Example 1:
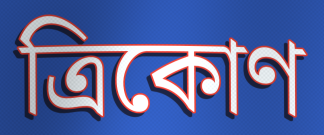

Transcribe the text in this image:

ত্ৰিকোণ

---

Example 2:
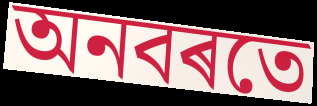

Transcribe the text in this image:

অনবৰতে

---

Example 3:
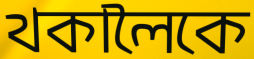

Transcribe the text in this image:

থকালৈকে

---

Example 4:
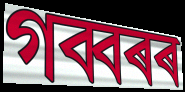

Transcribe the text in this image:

গব্বৰৰ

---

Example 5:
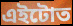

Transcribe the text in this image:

এইটোত